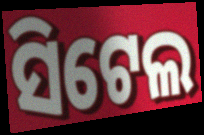
ସିଟେଲ